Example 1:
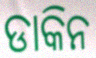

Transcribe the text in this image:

ଡାକିନ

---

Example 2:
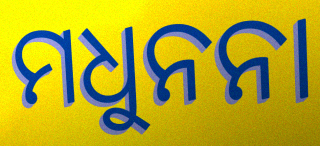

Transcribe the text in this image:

ମଧୁନନା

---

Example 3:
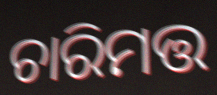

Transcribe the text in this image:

ଚାରିମତ୍ତ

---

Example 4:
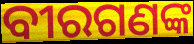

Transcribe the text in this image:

ବୀରଗଣଙ୍କ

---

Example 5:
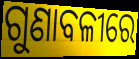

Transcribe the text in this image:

ଗୁଣାବଳୀରେ